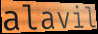
alavil